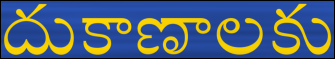
దుకాణాలకు